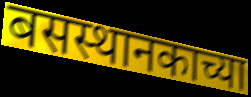
बसस्थानकाच्या